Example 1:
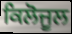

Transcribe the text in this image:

ਕਿਲੋਜੂਲ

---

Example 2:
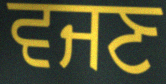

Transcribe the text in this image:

ਵਜਣ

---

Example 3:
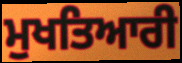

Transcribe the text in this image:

ਮੁਖਤਿਆਰੀ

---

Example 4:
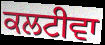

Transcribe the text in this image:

ਕਲਟੀਵਾ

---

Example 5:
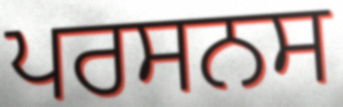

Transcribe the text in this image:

ਪਰਸਨਸ